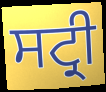
ਸਟ੍ਰੀ